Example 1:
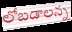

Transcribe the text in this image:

లోబడాలన్న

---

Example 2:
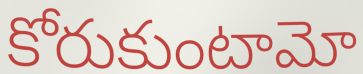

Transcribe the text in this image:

కోరుకుంటామో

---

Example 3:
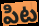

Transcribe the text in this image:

పిట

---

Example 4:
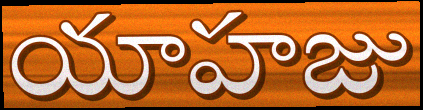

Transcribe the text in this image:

యాహజు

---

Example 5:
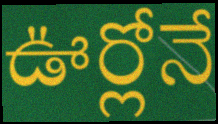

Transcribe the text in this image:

ఊర్లోనే